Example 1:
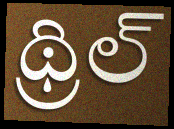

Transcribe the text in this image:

థ్రిల్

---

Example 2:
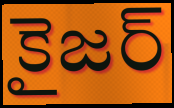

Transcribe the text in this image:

కైజర్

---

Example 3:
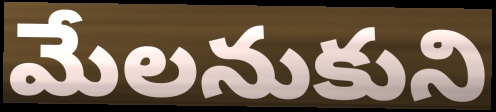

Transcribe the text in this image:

మేలనుకుని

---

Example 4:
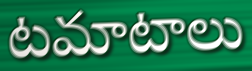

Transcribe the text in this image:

టమాటాలు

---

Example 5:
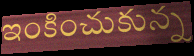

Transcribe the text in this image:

ఇంకించుకున్న